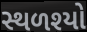
સ્થળશ્યો